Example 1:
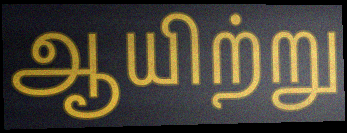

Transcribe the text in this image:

ஆயிற்று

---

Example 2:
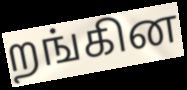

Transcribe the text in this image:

றங்கின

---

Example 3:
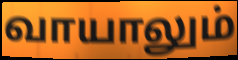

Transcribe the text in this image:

வாயாலும்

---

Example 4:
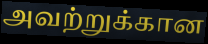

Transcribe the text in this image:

அவற்றுக்கான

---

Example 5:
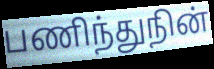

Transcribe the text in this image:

பணிந்துநின்